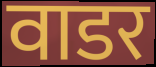
वाडर